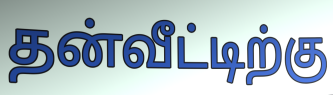
தன்வீட்டிற்கு